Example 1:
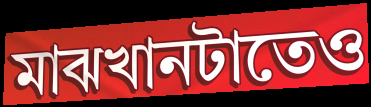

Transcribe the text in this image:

মাঝখানটাতেও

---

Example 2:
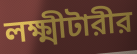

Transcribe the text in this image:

লক্ষ্মীটারীর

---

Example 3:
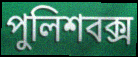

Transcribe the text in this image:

পুলিশবক্স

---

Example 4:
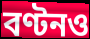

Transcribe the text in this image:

বণ্টনও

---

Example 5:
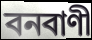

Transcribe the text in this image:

বনবাণী